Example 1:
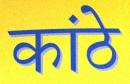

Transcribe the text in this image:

कांठे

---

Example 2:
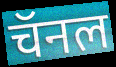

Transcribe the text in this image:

चॅनल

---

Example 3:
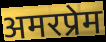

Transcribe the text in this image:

अमरप्रेम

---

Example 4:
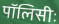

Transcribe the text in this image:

पॉलिसीः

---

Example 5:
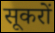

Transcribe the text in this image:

सूकरों